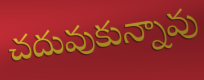
చదువుకున్నావు